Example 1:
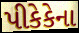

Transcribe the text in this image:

પીકેકેના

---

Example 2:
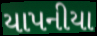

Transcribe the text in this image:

યાપનીયા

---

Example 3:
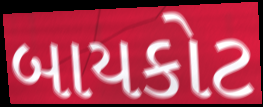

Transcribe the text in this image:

બાયકોટ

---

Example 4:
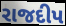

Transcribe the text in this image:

રાજદીપ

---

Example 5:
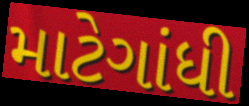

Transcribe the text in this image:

માટેગાંધી